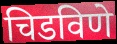
चिडविणे